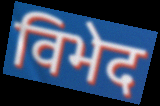
विभेद